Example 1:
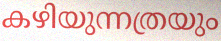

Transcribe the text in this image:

കഴിയുന്നത്രയും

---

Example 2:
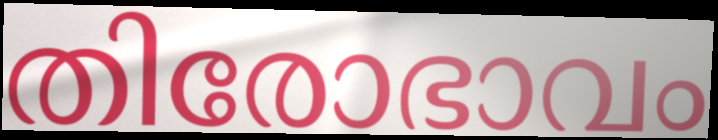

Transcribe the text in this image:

തിരോഭാവം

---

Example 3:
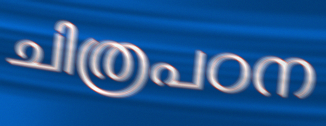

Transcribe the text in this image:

ചിത്രപഠന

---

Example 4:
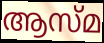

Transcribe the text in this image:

ആസ്മ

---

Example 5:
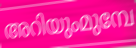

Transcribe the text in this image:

അറിയുംമുമ്പേ